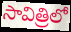
సావిత్రిలో